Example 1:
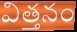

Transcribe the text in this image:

విత్తనం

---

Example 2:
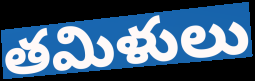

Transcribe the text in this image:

తమిళులు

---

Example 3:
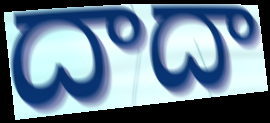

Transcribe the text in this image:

దాదా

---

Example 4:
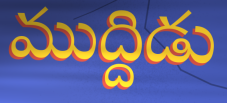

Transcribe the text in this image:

ముద్దిడు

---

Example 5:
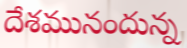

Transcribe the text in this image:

దేశమునందున్న